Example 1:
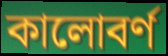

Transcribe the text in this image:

কালোবর্ণ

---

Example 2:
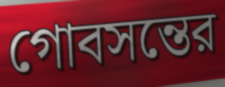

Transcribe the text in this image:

গোবসন্তের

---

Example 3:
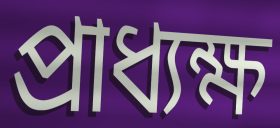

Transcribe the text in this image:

প্রাধ্যক্ষ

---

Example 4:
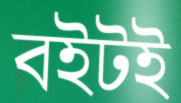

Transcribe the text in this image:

বইটই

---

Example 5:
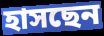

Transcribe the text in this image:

হাসছেন